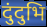
दुंदुभि